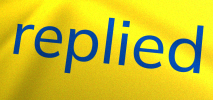
replied